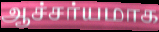
ஆச்சர்யமாக